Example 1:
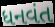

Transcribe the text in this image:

ધનવંત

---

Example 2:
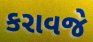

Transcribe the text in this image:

કરાવજે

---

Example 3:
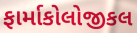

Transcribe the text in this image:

ફાર્માકોલોજીકલ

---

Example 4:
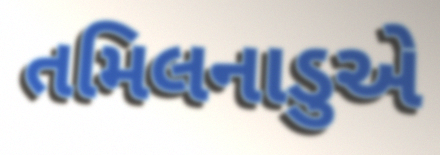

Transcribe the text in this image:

તમિલનાડુએ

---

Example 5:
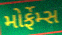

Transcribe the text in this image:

મોર્ફેમ્સ